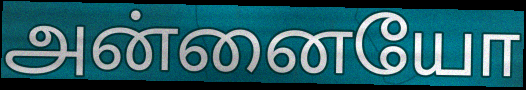
அன்னையோ